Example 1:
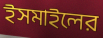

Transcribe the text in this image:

ইসমাইলের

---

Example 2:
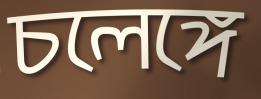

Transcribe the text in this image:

চলেঙ্গে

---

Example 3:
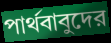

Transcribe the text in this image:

পার্থবাবুদের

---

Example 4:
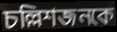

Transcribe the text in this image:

চল্লিশজনকে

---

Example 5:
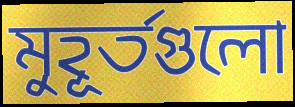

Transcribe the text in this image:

মুহূর্তগুলো